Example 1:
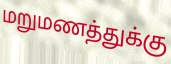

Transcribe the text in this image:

மறுமணத்துக்கு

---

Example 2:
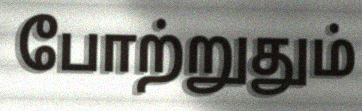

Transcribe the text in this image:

போற்றுதும்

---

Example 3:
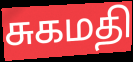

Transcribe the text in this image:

சுகமதி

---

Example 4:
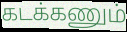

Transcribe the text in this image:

கடக்கணும்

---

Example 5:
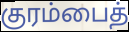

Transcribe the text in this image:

குரம்பைத்